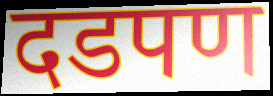
दडपण